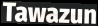
Tawazun